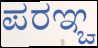
ಪರಞ್ಚ